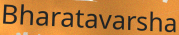
Bharatavarsha